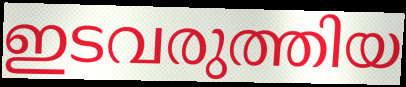
ഇടവരുത്തിയ